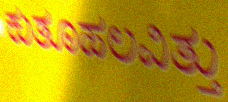
ಕುತೂಹಲವಿತ್ತು